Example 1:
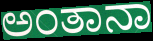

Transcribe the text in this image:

ಅಂತಾನಾ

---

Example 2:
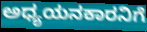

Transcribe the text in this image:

ಅಧ್ಯಯನಕಾರನಿಗೆ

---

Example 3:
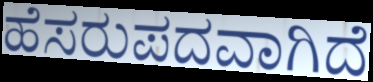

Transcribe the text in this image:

ಹೆಸರುಪದವಾಗಿದೆ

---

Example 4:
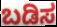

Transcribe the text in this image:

ಬಡಿಸ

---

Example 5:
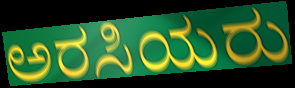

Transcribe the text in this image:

ಅರಸಿಯರು